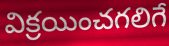
విక్రయించగలిగే